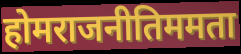
होमराजनीतिममता